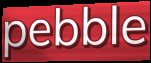
pebble